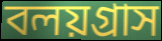
বলয়গ্রাস